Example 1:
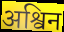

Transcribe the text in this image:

अश्विन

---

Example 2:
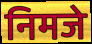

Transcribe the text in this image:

निमजे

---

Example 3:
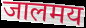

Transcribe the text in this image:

जालमय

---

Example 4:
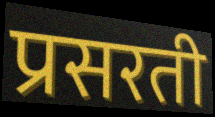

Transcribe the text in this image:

प्रसरती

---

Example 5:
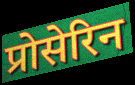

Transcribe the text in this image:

प्रोसेरिन